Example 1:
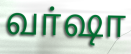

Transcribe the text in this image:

வர்ஷா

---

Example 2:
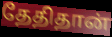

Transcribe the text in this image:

தேதிதான்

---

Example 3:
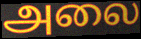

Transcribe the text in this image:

அலை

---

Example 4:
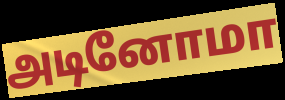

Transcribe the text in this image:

அடினோமா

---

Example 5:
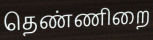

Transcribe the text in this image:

தெண்ணிறை